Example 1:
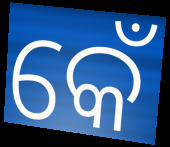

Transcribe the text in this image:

କେଁ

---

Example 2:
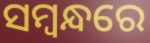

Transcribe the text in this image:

ସମ୍ବନ୍ଧରେ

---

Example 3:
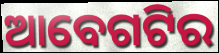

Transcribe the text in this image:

ଆବେଗଟିର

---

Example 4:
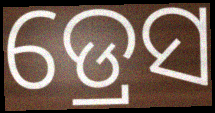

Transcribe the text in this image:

ଡ୍ରେସ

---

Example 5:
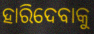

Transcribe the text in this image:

ହାରିଦେବାକୁ